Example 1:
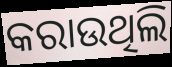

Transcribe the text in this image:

କରାଉଥିଲି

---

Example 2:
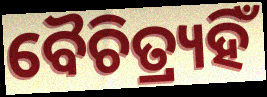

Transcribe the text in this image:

ବୈଚିତ୍ର୍ୟହିଁ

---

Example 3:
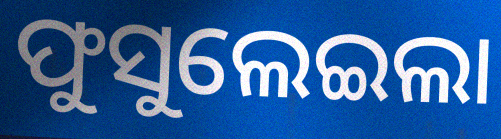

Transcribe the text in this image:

ଫୁସୁଲେଇଲା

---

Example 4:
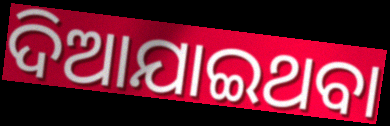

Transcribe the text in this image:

ଦିଆଯାଇଥବା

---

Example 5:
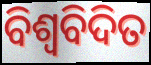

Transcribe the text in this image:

ବିଶ୍ବବିଦିତ